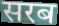
सरब